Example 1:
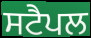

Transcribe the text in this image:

ਸਟੈਪਲ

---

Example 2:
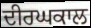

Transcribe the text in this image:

ਦੀਰਘਕਾਲ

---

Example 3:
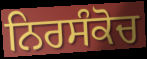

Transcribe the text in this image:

ਨਿਰਸੰਕੋਚ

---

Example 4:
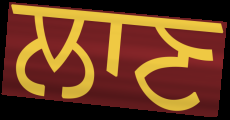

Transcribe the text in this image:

ਲਾਣ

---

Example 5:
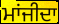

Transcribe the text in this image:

ਮਾਂਜੀਦਾ